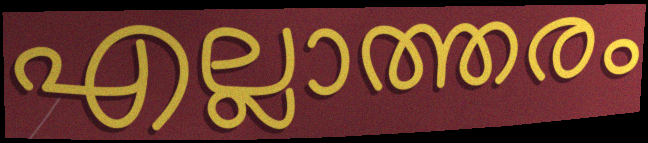
എല്ലാത്തരം